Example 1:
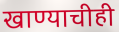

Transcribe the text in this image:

खाण्याचीही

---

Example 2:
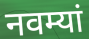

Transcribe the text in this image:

नवम्यां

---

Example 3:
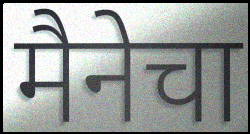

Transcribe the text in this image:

मैनेचा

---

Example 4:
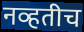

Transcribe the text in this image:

नव्हतीच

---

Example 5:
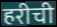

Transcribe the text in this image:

हरीची